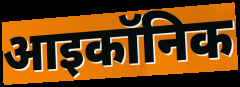
आइकॉनिक